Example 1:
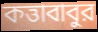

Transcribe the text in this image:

কত্তাবাবুর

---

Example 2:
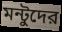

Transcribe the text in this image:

মন্টুদের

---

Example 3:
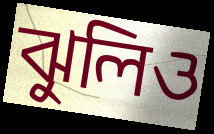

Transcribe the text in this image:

ঝুলিও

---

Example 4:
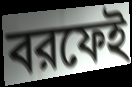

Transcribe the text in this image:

বরফেই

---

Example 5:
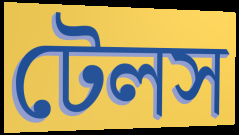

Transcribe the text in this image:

টেলস